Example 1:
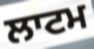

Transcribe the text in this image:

ਲਾਟਮ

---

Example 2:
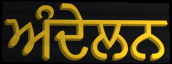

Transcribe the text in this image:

ਅੰਦੇਲਨ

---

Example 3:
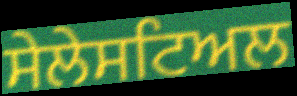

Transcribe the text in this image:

ਸੇਲੇਸਟਿਅਲ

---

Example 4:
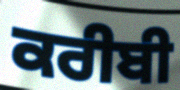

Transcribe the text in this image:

ਕਰੀਬੀ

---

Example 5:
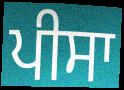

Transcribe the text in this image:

ਪੀਸਾ